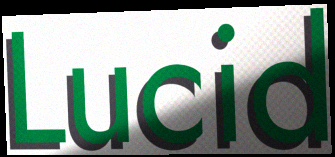
Lucid